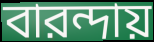
বারন্দায়